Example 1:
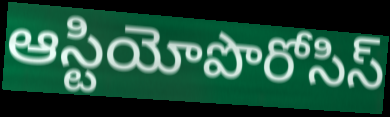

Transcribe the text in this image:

ఆస్టియోపొరోసిస్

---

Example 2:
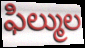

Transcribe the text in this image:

ఫిల్ముల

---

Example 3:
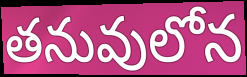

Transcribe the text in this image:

తనువులోన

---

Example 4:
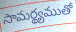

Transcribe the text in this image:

సామర్థ్యముతో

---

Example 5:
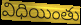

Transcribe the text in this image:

విధియింతు